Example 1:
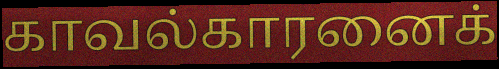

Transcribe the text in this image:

காவல்காரனைக்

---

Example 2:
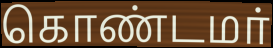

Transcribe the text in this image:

கொண்டமர்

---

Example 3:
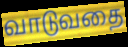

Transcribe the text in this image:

வாடுவதை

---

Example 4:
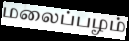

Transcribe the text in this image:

மலைப்பழம்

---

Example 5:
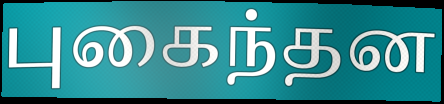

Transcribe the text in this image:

புகைந்தன